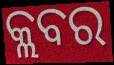
କ୍ଲବର